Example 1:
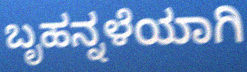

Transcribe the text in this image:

ಬೃಹನ್ನಳೆಯಾಗಿ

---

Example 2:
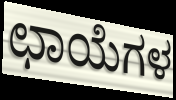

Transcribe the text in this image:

ಛಾಯೆಗಳ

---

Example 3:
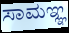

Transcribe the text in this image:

ಸಾಮಞ್ಞ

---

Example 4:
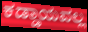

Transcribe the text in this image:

ಕಡ್ಡಾಯವಲ್ಲ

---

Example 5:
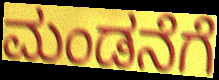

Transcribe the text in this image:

ಮಂಡನೆಗೆ